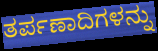
ತರ್ಪಣಾದಿಗಳನ್ನು